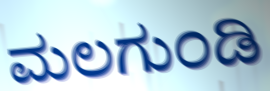
ಮಲಗುಂಡಿ